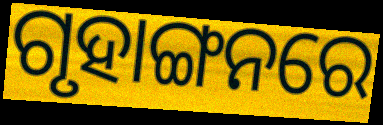
ଗୃହାଙ୍ଗନରେ